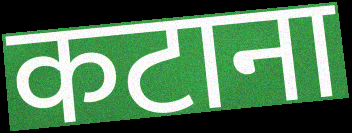
कटाना